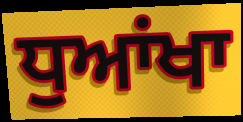
ਧੁਆਂਖਾ